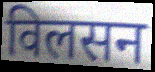
विलसन